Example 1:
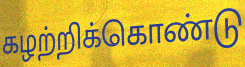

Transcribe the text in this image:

கழற்றிக்கொண்டு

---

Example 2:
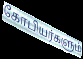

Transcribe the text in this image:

கோபியர்களும்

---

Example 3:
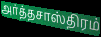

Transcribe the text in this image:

அர்த்தசாஸ்திரம்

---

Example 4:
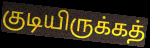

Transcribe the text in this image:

குடியிருக்கத்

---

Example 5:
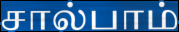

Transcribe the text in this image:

சால்பாம்